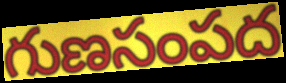
గుణసంపద